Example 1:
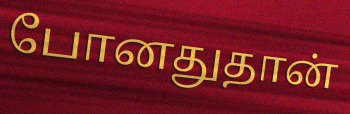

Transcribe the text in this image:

போனதுதான்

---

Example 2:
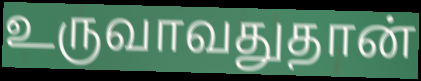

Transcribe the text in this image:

உருவாவதுதான்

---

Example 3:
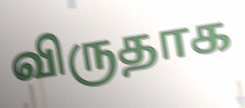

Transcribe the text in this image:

விருதாக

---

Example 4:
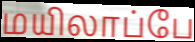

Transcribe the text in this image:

மயிலாப்பே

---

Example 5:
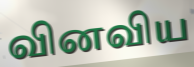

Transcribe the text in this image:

வினவிய